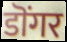
डॊंगर